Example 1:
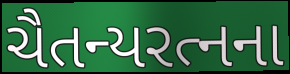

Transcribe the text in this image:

ચૈતન્યરત્નના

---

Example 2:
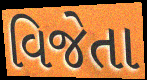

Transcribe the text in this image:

વિજેતા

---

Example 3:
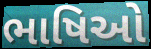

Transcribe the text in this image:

ભાષિઓ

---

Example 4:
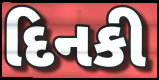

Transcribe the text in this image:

દિનકી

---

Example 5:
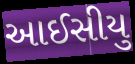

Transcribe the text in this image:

આઈસીયુ